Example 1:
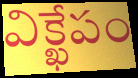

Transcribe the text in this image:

విక్ఖేపం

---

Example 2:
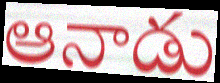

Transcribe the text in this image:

ఆనాడు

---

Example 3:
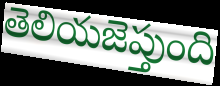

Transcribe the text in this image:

తెలియజెప్తుంది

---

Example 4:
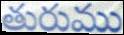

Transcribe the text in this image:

తురుము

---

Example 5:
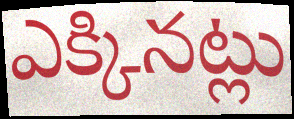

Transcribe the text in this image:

ఎక్కినట్లు